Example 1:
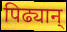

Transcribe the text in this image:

पिढ्यान्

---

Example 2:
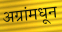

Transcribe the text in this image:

अग्रांमधून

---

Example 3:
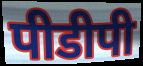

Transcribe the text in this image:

पीडीपी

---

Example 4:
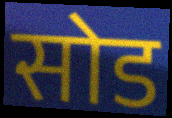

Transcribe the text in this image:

सोड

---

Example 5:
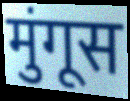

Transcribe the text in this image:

मुंगूस